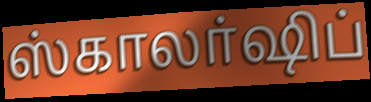
ஸ்காலர்ஷிப்